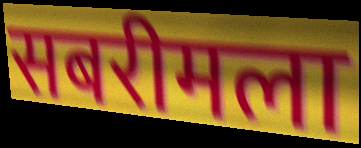
सबरीमला